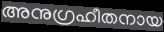
അനുഗ്രഹീതനായ